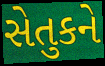
સેતુકને